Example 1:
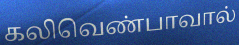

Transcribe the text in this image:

கலிவெண்பாவால்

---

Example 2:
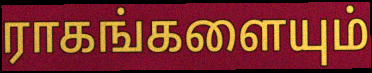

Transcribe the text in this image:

ராகங்களையும்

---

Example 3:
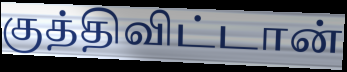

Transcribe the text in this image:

குத்திவிட்டான்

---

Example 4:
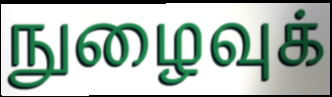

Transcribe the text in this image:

நுழைவுக்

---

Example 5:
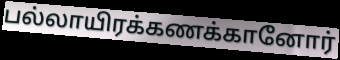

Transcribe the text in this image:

பல்லாயிரக்கணக்கானோர்